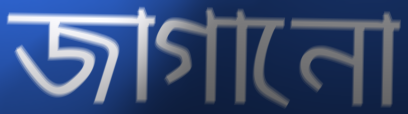
জাগানো